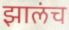
झालंच